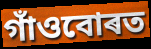
গাঁওবোৰত